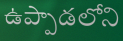
ఉప్పాడలోని